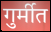
गुर्मीत